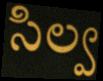
సిల్వ